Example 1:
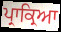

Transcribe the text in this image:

ਪ੍ਰਾਕ੍ਰਿਆ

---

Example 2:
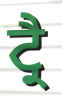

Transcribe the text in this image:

ਟ੍ਰੈ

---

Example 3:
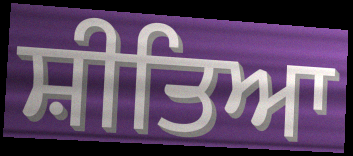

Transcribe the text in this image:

ਸ਼ੀਤਿਆ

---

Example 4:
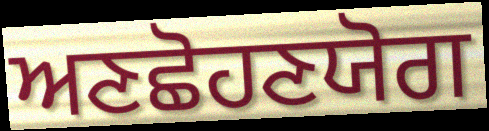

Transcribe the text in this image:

ਅਣਛੋਹਣਯੋਗ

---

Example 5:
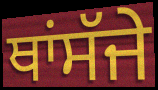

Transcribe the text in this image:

ਥਾਂਸੱਜੇ